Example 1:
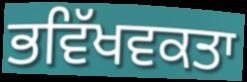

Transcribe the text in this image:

ਭਵਿੱਖਵਕਤਾ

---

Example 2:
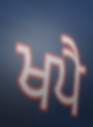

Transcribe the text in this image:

ਖਪੈ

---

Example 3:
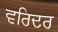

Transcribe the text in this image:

ਵਰਿਦਰ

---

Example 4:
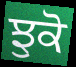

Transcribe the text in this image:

ਝੁਕੋ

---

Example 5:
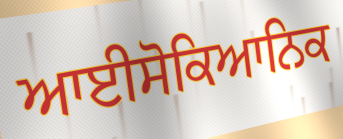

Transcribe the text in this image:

ਆਈਸੋਕਿਆਨਿਕ